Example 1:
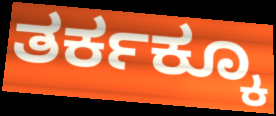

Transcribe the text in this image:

ತರ್ಕಕ್ಕೂ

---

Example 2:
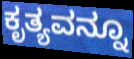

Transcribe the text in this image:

ಕೃತ್ಯವನ್ನೂ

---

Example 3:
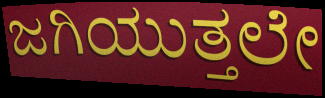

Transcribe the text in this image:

ಜಗಿಯುತ್ತಲೇ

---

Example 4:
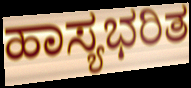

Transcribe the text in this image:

ಹಾಸ್ಯಭರಿತ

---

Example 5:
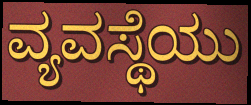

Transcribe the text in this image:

ವ್ಯವಸ್ಥೆಯು